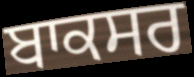
ਬਾਕਸਰ